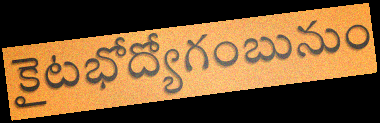
కైటభోద్యోగంబునుం